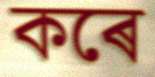
কৰে